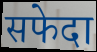
सफेदा